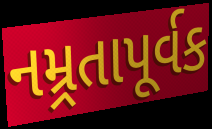
નમ્ર્રતાપૂર્વક